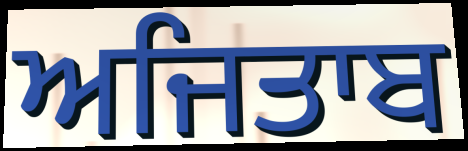
ਅਜਿਤਾਬ